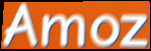
Amoz